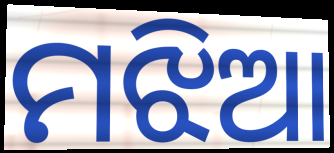
ମଝିଆ